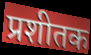
प्रशीतक